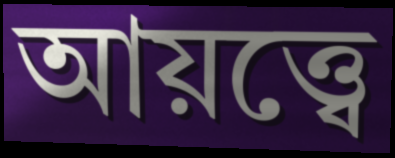
আয়ত্ত্বে